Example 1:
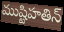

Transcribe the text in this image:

ముష్టిహతిన్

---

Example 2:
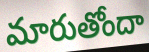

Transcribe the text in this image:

మారుతోందా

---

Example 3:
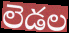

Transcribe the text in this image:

లెడల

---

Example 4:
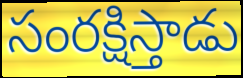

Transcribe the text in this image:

సంరక్షిస్తాడు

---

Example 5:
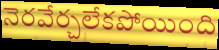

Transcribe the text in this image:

నెరవేర్చలేకపోయింది